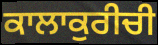
ਕਾਲਾਕੁਰੀਚੀ